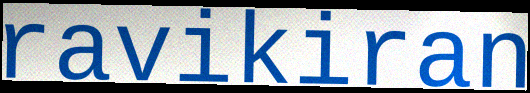
ravikiran